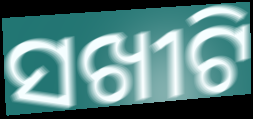
ସଖୀଟି